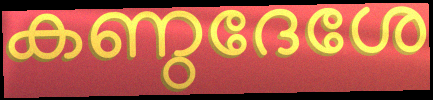
കണ്ഠദേശേ